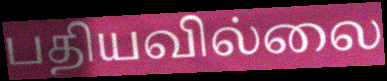
பதியவில்லை